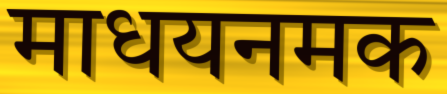
माधयनमक